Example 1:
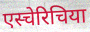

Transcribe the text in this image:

एस्चेरिचिया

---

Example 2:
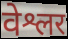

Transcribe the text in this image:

वेश्लर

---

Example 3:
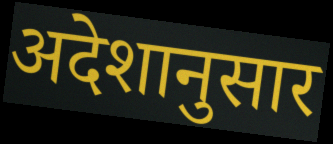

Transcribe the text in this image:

अदेशानुसार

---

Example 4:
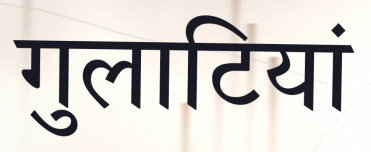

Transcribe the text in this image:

गुलाटियां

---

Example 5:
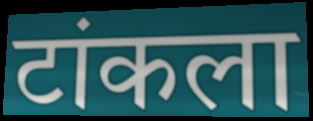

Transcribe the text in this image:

टांकला